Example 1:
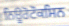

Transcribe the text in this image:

ਨਿਊਰੋਟੌਕਸਿਨ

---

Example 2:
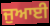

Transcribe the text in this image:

ਜੁਆਈ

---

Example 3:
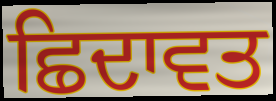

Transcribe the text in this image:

ਛਿਦਾਵਤ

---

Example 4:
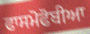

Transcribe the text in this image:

ਫਾਸਮੋਫੋਬੀਆ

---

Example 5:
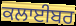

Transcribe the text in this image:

ਕਲਾਈਬਰ